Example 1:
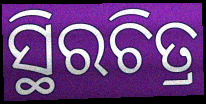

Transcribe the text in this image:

ସ୍ଥିରଚିତ୍ର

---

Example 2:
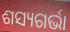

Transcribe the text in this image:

ଶସ୍ୟଗର୍ଭା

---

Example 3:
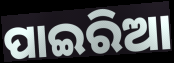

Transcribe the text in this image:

ପାଇରିଆ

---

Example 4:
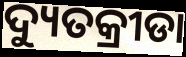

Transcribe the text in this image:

ଦ୍ୟୁତକ୍ରୀଡା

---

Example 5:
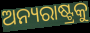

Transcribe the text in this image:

ଅନ୍ୟରାଷ୍ଟ୍ରକୁ